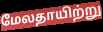
மேலதாயிற்று